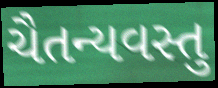
ચૈતન્યવસ્તુ